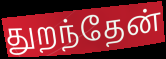
துறந்தேன்